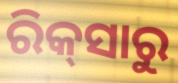
ରିକ୍‌ସାରୁ